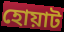
হোয়াট